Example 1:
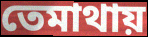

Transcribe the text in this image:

তেমাথায়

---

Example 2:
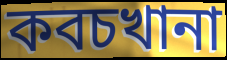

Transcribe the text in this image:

কবচখানা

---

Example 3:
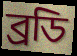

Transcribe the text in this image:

ব্রডি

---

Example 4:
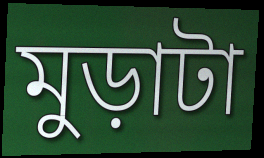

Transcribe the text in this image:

মুড়াটা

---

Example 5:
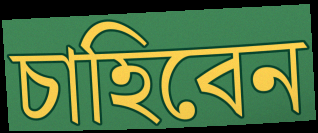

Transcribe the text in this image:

চাহিবেন